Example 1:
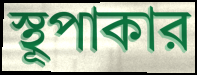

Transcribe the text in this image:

স্থূপাকার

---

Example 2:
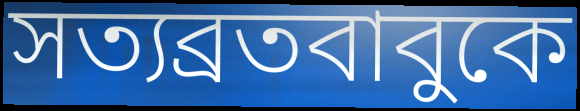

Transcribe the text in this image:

সত্যব্রতবাবুকে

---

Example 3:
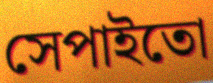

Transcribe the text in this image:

সেপাইতো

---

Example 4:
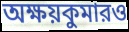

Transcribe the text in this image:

অক্ষয়কুমারও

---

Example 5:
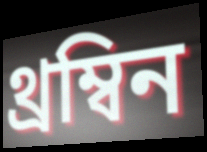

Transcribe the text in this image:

থ্রম্বিন